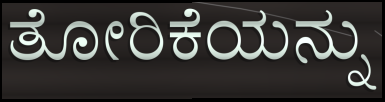
ತೋರಿಕೆಯನ್ನು